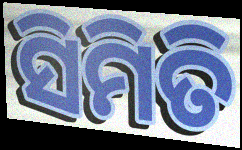
ସିମିତି